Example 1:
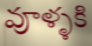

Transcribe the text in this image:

వూళ్ళకి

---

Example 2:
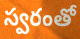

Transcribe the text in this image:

స్వరంతో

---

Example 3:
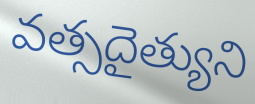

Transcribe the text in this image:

వత్సదైత్యుని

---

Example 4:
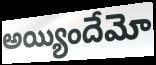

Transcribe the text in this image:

అయ్యిందేమో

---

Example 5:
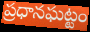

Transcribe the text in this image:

ప్రధానఘట్టం